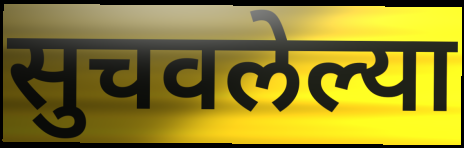
सुचवलेल्या